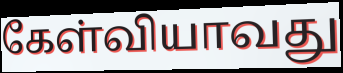
கேள்வியாவது